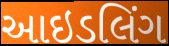
આઇડલિંગ